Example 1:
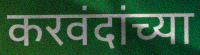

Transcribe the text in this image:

करवंदांच्या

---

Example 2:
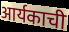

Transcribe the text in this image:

आर्यकाची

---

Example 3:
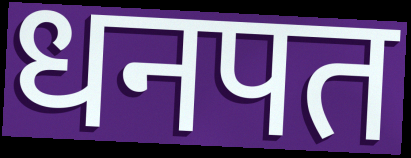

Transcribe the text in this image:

धनपत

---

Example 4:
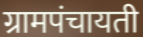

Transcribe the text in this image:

ग्रामपंचायती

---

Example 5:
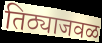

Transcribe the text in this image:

तिठ्याजवळ